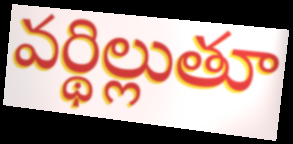
వర్థిల్లుతూ